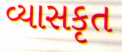
વ્યાસકૃત